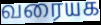
வரையக